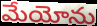
మేయోను